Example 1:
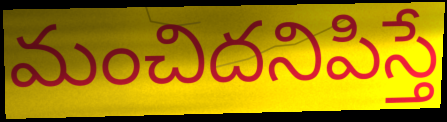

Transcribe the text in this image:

మంచిదనిపిస్తే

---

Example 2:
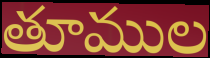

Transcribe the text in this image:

తూముల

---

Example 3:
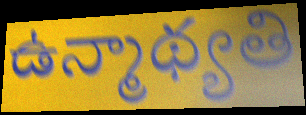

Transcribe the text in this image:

ఉన్మాథ్యతి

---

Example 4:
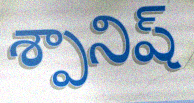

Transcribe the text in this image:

శ్పానిష్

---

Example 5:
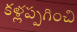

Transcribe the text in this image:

కళ్లప్పగించి